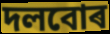
দলবোৰ